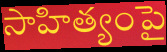
సాహిత్యంపై